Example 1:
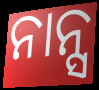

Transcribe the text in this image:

ନାନ୍ସ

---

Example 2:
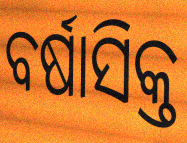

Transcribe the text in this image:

ବର୍ଷାସିକ୍ତ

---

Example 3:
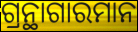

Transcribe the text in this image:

ଗ୍ରନ୍ଥାଗାରମାନ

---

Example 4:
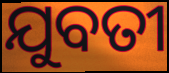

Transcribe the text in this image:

ଯୁବତୀ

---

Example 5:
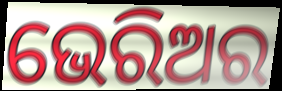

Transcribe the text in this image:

ଭେରିଅର